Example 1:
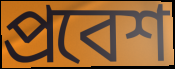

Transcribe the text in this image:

প্ৰবেশ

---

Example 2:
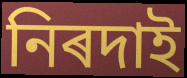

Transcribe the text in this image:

নিৰদাই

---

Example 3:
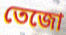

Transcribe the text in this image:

তেজো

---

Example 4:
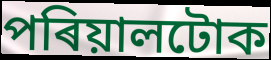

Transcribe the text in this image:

পৰিয়ালটোক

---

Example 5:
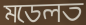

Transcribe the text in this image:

মডেলত